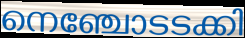
നെഞ്ചോടടക്കി